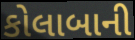
કોલાબાની